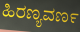
ಹಿರಣ್ಯವರ್ಣ